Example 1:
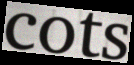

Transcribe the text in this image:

cots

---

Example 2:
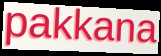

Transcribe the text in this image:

pakkana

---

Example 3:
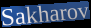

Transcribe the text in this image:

Sakharov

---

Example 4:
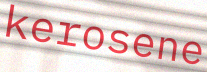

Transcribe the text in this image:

kerosene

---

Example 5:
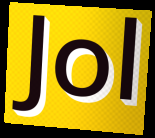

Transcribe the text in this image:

Jol